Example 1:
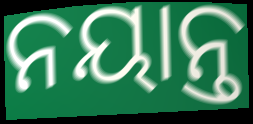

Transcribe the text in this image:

ନୟାନ୍ତ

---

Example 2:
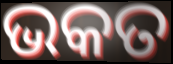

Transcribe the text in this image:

ଭକତ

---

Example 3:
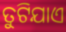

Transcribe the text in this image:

ତୁଟିଯାଏ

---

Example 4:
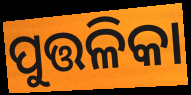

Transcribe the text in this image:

ପୁତ୍ତଳିକା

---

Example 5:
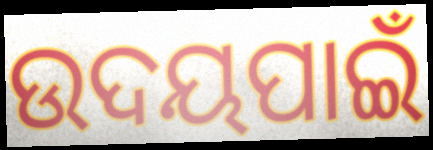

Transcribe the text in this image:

ଉଦୟପାଇଁ